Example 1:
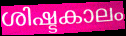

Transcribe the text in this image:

ശിഷ്ടകാലം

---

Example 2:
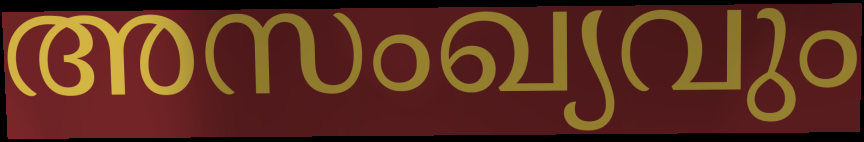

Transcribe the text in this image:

അസംഖ്യവും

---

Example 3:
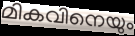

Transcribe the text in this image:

മികവിനെയും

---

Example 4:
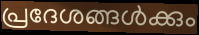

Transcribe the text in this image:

പ്രദേശങ്ങൾക്കും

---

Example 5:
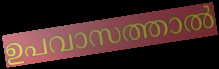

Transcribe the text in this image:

ഉപവാസത്താൽ